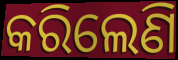
କରିଲେଣି